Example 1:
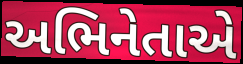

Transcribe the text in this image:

અભિનેતાએ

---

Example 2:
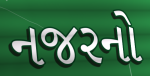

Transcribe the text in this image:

નજરનો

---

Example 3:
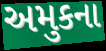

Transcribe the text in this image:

અમુકના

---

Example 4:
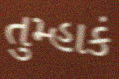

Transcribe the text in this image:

તુમ્હાકં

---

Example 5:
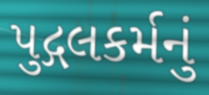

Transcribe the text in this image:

પુદ્ગલકર્મનું